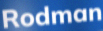
Rodman